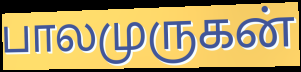
பாலமுருகன்